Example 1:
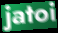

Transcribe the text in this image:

jatoi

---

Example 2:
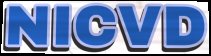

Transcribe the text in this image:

NICVD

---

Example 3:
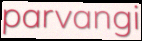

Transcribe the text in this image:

parvangi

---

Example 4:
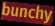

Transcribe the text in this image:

bunchy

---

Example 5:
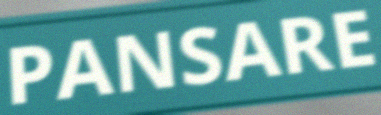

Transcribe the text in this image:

PANSARE